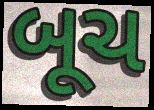
બૂચ